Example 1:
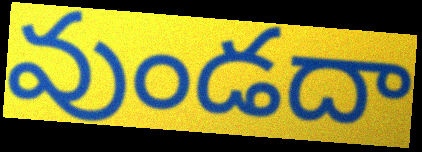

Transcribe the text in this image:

వుండదా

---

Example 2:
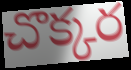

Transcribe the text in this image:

చొక్కర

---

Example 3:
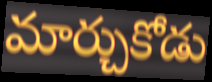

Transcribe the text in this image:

మార్చుకోడు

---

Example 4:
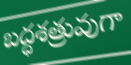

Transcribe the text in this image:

బద్ధశత్రువుగా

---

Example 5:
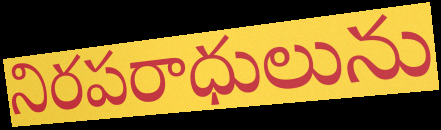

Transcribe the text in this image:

నిరపరాధులును